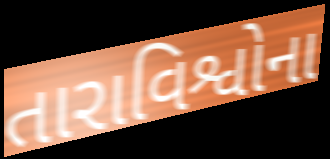
તારાવિશ્વોના